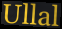
Ullal